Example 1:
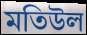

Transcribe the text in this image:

মতিউল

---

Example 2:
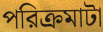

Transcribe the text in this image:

পরিক্রমাটা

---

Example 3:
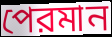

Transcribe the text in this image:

পেরমান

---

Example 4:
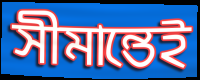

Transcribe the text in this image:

সীমান্তেই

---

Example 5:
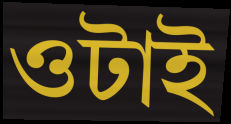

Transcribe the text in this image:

ওটাই